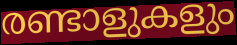
രണ്ടാളുകളും